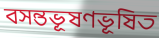
বসন্তভূষণভূষিত